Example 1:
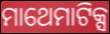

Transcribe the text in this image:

ମାଥେମାଟିକ୍ସ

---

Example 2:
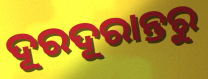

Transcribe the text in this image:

ଦୂରଦୂରାନ୍ତରୁ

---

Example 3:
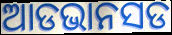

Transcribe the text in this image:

ଆଡଭାନସଡ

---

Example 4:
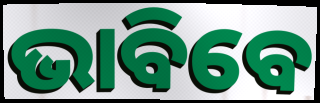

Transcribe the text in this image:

ଭାବିବେ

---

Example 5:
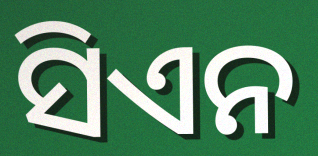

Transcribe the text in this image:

ସିଏନ